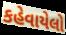
કહેવાયેલો